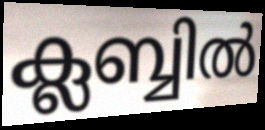
ക്ലബ്ബിൽ